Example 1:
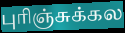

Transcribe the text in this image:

புரிஞ்சுக்கல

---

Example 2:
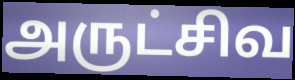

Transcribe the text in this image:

அருட்சிவ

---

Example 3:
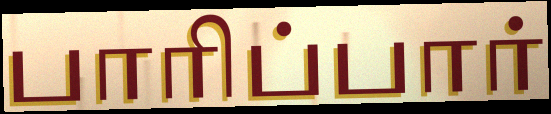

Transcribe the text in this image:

பாரிப்பார்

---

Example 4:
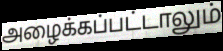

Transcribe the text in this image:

அழைக்கப்பட்டாலும்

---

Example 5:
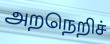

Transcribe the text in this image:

அறநெறிச்